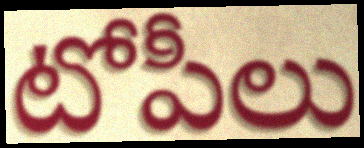
టోపీలు